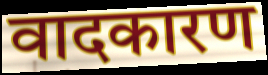
वादकारण